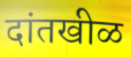
दांतखीळ